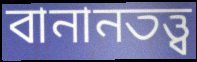
বানানতত্ত্ব